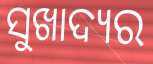
ସୁଖାଦ୍ୟର